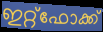
ഇറ്റ്ഫോക്ക്